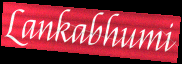
Lankabhumi